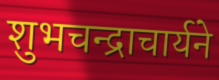
शुभचन्द्राचार्यने